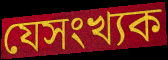
যেসংখ্যক